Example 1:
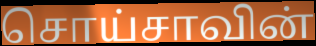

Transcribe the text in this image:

சொய்சாவின்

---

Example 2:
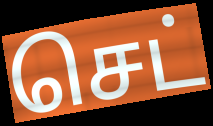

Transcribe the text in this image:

செட்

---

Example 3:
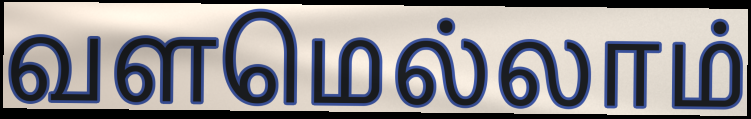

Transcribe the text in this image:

வளமெல்லாம்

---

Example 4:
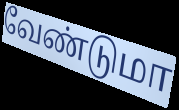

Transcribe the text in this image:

வேண்டுமா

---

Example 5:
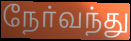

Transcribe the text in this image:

நேர்வந்து